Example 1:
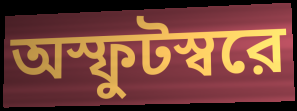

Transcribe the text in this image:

অস্ফুটস্বরে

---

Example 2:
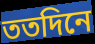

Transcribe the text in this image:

ততদিনে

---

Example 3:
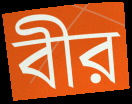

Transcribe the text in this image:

বীর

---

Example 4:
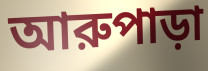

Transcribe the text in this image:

আরুপাড়া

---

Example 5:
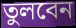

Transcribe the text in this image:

তুলবেন